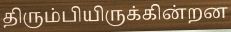
திரும்பியிருக்கின்றன